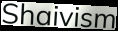
Shaivism